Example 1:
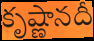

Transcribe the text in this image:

కృష్ణానదీ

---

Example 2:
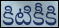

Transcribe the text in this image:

కిటికీకి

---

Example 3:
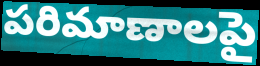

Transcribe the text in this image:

పరిమాణాలపై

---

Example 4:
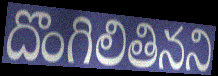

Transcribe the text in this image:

దొంగిలితినని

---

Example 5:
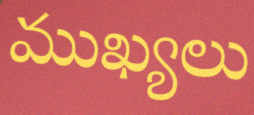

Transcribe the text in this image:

ముఖ్యలు